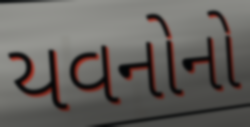
યવનોનો